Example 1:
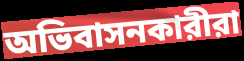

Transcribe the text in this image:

অভিবাসনকারীরা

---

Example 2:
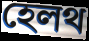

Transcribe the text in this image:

হেলথ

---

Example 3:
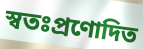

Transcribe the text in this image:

স্বতঃপ্রণোদিত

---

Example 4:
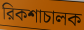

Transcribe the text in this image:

রিকশাচালক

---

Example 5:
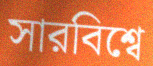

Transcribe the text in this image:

সারবিশ্বে